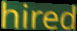
hired